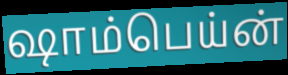
ஷாம்பெய்ன்